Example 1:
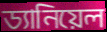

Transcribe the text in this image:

ড্যানিয়েল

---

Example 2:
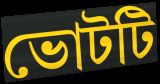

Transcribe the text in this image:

ভোটটি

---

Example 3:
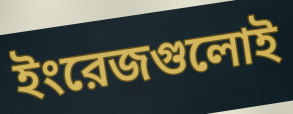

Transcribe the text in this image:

ইংরেজগুলোই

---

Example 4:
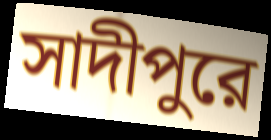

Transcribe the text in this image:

সাদীপুরে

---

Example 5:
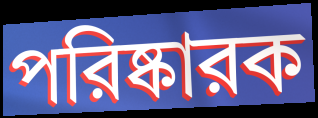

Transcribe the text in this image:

পরিষ্কারক